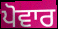
ਪੋਵਾਰ